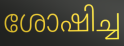
ശോഷിച്ച